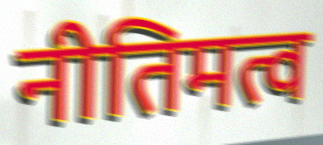
नीतिमत्व